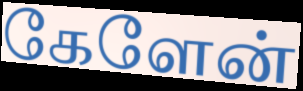
கேளேன்